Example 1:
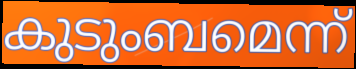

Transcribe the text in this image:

കുടുംബമെന്ന്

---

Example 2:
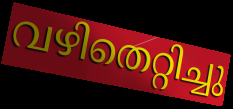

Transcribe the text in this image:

വഴിതെറ്റിച്ചു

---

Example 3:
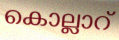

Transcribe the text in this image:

കൊല്ലാറ്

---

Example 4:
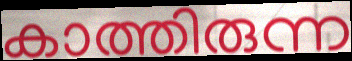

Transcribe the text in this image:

കാത്തിരുന്ന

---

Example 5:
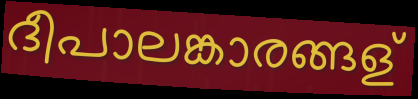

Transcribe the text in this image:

ദീപാലങ്കാരങ്ങള്